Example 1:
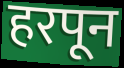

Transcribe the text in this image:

हरपून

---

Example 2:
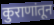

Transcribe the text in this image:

कुराणांतून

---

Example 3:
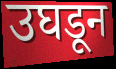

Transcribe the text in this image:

उघडून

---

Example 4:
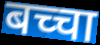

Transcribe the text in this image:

बच्चा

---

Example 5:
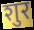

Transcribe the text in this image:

शुर